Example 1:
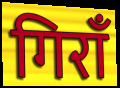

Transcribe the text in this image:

गिराँ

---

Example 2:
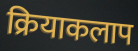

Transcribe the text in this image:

क्रियाकलाप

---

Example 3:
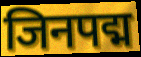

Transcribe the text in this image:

जिनपद्म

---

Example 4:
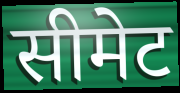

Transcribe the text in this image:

सीमेट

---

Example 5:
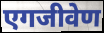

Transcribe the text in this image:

एगजीवेण